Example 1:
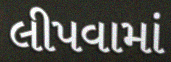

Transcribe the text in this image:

લીપવામાં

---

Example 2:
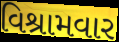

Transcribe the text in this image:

વિશ્રામવાર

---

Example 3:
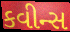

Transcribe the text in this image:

કવીન્સ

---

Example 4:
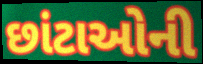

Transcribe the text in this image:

છાંટાઓની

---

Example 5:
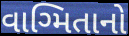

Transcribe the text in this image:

વાગ્મિતાનો